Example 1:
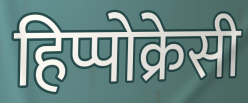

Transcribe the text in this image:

हिप्पोक्रेसी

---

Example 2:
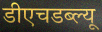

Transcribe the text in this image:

डीएचडब्ल्यू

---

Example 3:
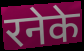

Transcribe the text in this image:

रनेके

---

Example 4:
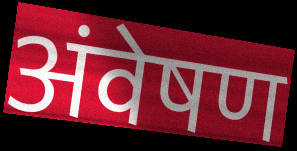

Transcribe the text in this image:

अंवेषण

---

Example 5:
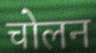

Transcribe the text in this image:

चोलन